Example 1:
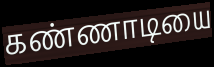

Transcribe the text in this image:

கண்ணாடியை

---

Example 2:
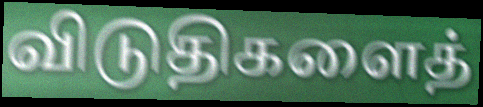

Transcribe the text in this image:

விடுதிகளைத்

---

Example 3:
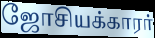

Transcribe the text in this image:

ஜோசியக்காரர்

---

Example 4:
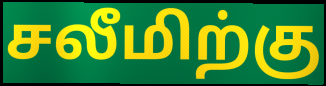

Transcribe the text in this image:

சலீமிற்கு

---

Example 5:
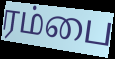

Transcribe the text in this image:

ரம்பை